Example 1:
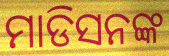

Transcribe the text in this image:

ମାଡିସନଙ୍କ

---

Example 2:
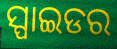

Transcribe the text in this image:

ସ୍ପାଇଡର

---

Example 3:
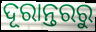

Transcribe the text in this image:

ଦୂରାନ୍ତରରୁ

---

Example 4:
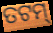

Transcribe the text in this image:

ତଟମ୍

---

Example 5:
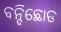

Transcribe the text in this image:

ବନ୍ଦିଛୋଡ